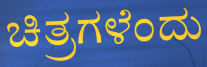
ಚಿತ್ರಗಳೆಂದು